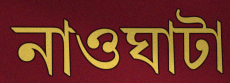
নাওঘাটা